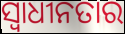
ସ୍ବାଧୀନତାର